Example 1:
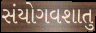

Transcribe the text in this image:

સંયોગવશાતુ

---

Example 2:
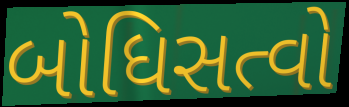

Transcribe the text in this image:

બોધિસત્વો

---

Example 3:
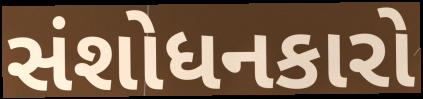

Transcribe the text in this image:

સંશોધનકારો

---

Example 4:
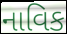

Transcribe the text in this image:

નાવિક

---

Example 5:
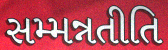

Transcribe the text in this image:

સમ્મન્નતીતિ